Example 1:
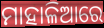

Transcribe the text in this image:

ମାହାଳିଆରେ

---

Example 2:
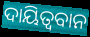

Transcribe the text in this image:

ଦାୟିତ୍ଵବାନ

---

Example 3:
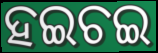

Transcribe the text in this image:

ହଇଚଇ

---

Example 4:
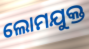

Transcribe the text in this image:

ଲୋମଯୁକ୍ତ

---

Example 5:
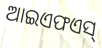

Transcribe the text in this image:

ଆଇଏଫଏସ୍